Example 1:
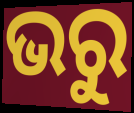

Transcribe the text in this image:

ଭରୁ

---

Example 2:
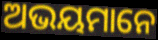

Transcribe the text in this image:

ଅଭୟମାନେ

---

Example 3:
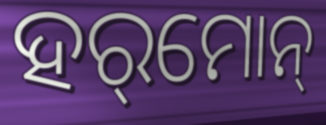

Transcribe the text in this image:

ହର୍‌ମୋନ୍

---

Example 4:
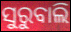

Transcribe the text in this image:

ସୁରୁବାଲି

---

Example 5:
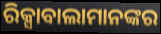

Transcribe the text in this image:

ରିକ୍ସାବାଲାମାନଙ୍କର